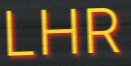
LHR